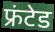
फ्रंटेड